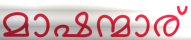
മാഷന്മാര്